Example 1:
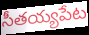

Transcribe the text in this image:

సీతయ్యపేట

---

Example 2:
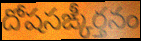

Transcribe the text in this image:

దోషసఙ్కీర్తనం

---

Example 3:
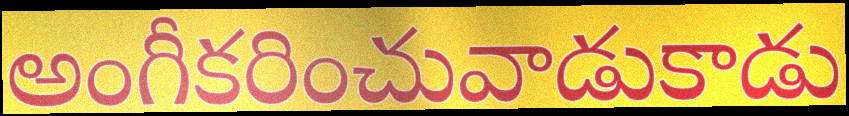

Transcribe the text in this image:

అంగీకరించువాడుకాడు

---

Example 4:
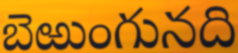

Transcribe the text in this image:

బెఱుంగునది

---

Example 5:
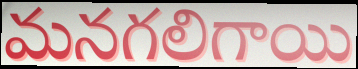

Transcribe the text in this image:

మనగలిగాయి